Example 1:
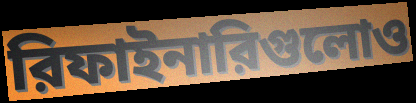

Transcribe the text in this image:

রিফাইনারিগুলোও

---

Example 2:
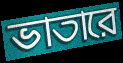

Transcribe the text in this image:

ভাতারে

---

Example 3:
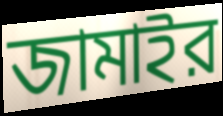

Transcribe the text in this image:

জামাইর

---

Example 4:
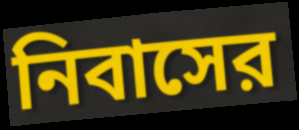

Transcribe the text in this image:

নিবাসের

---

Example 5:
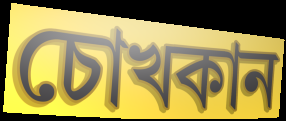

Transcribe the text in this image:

চোখকান